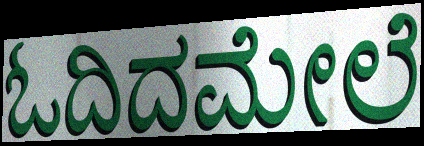
ಓದಿದಮೇಲೆ